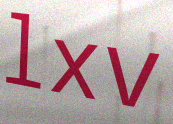
lxv